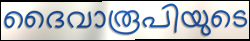
ദൈവാരൂപിയുടെ